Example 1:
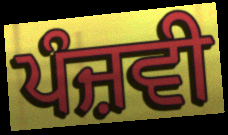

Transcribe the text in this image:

ਪੰਜ਼ਵੀ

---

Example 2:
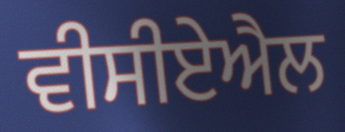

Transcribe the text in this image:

ਵੀਸੀਏਐਲ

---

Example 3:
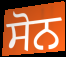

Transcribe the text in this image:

ਸੋਨ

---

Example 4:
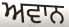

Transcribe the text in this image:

ਅਵਾਨ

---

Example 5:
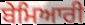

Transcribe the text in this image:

ਬੇਮਿਆਰੀ